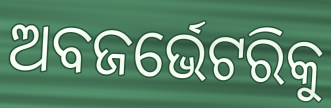
ଅବଜର୍ଭେଟରିକୁ